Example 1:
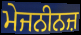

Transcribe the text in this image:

ਮੇਜਨੀਨਜ਼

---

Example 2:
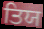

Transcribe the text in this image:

ਤਿਯ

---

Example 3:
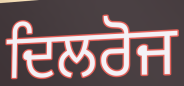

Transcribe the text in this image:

ਦਿਲਰੋਜ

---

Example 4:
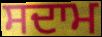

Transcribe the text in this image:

ਸਦਾਮ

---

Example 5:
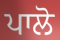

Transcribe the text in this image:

ਪਾਲੋ